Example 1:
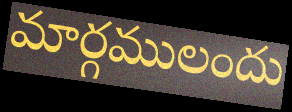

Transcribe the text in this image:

మార్గములందు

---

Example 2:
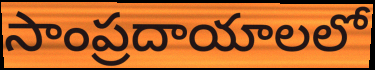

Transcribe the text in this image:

సాంప్రదాయాలలో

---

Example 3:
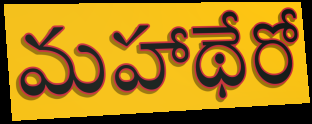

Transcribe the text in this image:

మహాథేరో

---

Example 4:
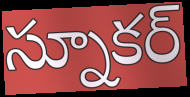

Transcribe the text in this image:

స్నూకర్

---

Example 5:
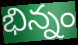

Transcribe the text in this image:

భిన్నం